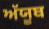
ਅੱਯੂਬ